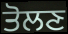
ਤੋਲਣ